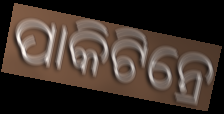
ପାକିଟିନ୍ରେ